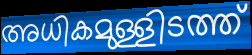
അധികമുള്ളിടത്ത്